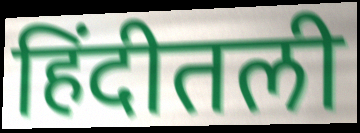
हिंदीतली